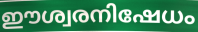
ഈശ്വരനിഷേധം